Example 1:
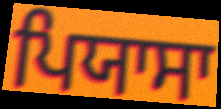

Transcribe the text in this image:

ਪਿਯਾਸਾ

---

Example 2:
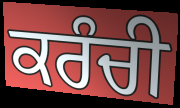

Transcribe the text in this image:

ਕਰੰਚੀ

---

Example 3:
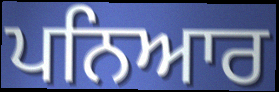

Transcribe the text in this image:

ਪਨਿਆਰ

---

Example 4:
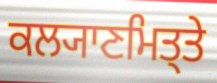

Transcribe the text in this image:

ਕਲ੍ਯਾਣਮਿਤ੍ਤੇ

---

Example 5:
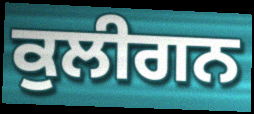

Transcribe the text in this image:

ਕੁਲੀਗਨ